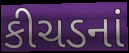
કીચડનાં